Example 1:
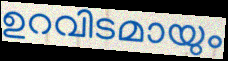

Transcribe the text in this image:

ഉറവിടമായും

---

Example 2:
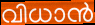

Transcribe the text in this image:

വിധാൻ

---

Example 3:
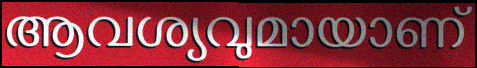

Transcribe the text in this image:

ആവശ്യവുമായാണ്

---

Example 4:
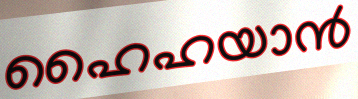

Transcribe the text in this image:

ഹൈഹയാൻ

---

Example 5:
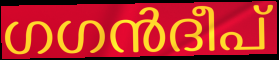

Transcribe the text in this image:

ഗഗൻദീപ്